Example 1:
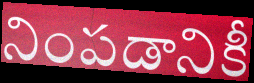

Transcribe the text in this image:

నింపడానికీ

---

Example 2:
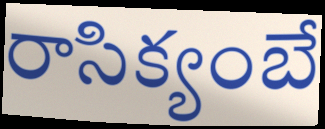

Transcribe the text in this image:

రాసిక్యంబే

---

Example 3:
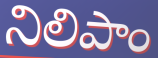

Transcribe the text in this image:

నిలిపాం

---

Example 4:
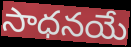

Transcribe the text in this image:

సాధనయే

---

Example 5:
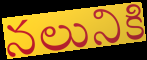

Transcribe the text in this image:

నలునికి